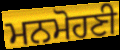
ਮਨਮੋਹਣੀ